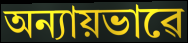
অন্যায়ভাৱে